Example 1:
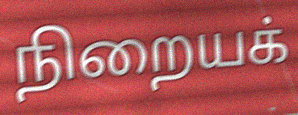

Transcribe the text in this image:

நிறையக்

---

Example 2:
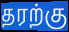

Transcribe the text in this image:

தரற்கு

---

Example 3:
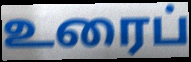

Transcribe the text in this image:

உரைப்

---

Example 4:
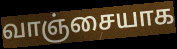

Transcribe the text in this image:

வாஞ்சையாக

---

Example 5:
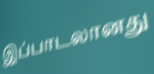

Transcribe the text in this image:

இப்பாடலானது